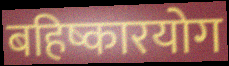
बहिष्कारयोग